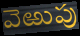
వెఱుపు